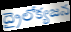
ద్రైలోక్యజన